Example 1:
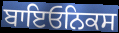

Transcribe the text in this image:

ਬਾਇਓਨਿਕਸ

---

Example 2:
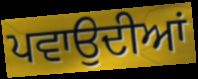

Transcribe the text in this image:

ਪਵਾਉਦੀਆਂ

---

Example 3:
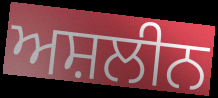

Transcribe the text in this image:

ਅਸ਼ਲੀਨ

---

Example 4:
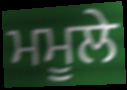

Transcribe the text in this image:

ਮਮੂਲੇ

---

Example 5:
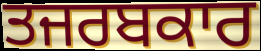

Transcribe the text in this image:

ਤਜਰਬਕਾਰ